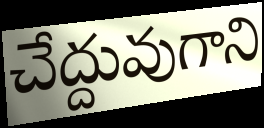
చేద్దువుగాని